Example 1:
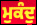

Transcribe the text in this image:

ਮੁਕੰਦੁ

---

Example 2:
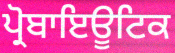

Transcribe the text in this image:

ਪ੍ਰੋਬਾਇਊਟਿਕ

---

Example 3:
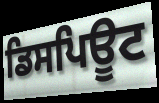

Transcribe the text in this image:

ਡਿਸਪਿਊਟ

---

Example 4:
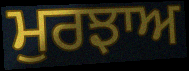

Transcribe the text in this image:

ਮੁਰਝਾਅ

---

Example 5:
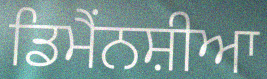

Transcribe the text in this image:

ਡਿਮੈਂਨਸ਼ੀਆ